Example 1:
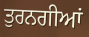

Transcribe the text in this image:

ਤੁਰਨਗੀਆਂ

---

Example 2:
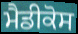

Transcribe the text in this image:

ਮੈਡੀਕੋਸ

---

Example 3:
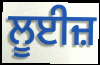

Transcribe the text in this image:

ਲੂਈਜ਼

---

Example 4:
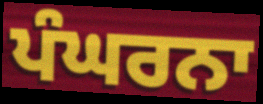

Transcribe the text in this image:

ਪੰਘਰਨਾ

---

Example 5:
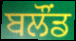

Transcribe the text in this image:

ਬਲੌਂਡ